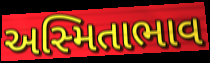
અસ્મિતાભાવ